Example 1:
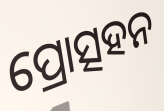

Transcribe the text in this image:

ପ୍ରୋତ୍ସହନ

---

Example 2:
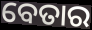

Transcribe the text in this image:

ବେତାର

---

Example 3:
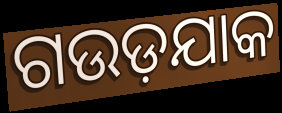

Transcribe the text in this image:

ଗଉଡ଼ଯାକ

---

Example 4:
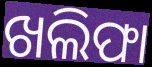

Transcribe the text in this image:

ଖଲିଫା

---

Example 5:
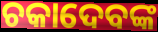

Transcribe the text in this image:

ଚକାଦେବଙ୍କ